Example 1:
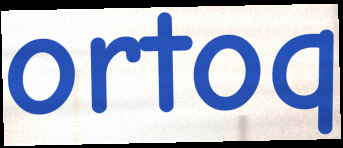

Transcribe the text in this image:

ortoq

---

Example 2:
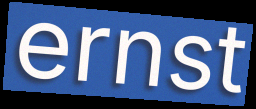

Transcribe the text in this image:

ernst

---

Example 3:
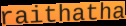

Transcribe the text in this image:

raithatha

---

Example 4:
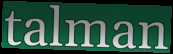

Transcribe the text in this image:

talman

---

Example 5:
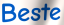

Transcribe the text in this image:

Beste